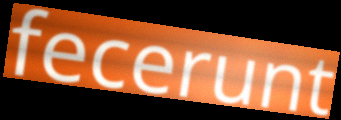
fecerunt